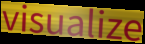
visualize